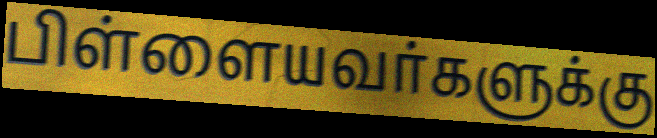
பிள்ளையவர்களுக்கு